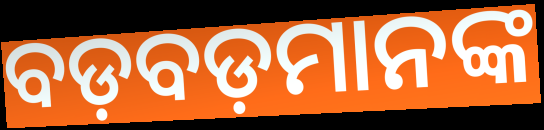
ବଡ଼ବଡ଼ମାନଙ୍କ